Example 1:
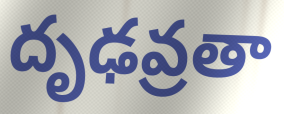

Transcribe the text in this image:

దృఢవ్రతా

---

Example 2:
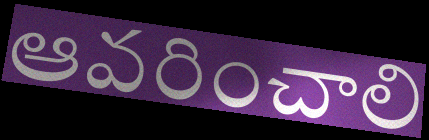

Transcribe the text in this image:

ఆవరించాలి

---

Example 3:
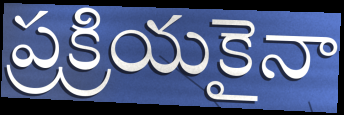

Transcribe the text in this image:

ప్రక్రియకైనా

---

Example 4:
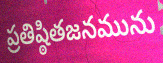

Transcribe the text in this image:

ప్రతిష్ఠితజనమును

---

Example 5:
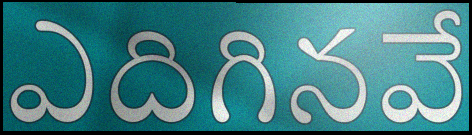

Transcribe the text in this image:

ఎదిగినవే